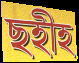
ছহীহ